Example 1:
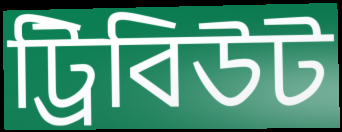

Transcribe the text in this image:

ট্রিবিউট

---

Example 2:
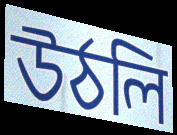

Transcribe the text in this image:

উঠলি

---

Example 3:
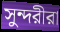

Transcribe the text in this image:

সুন্দরীরা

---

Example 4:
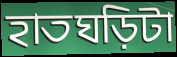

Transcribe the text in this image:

হাতঘড়িটা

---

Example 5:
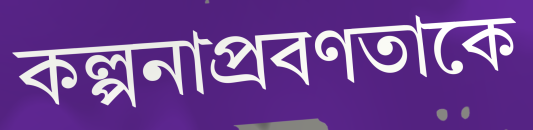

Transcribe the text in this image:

কল্পনাপ্রবণতাকে